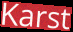
Karst